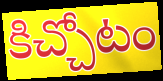
కిచ్చోటం